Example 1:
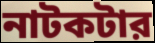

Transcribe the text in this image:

নাটকটার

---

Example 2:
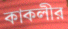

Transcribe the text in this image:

কাকলীর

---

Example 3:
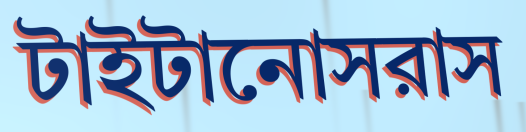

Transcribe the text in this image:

টাইটানোসরাস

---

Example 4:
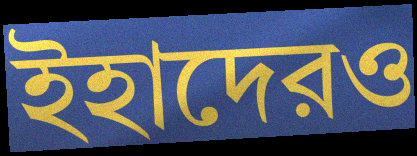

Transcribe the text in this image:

ইহাদেরও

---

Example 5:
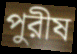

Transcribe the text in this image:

পুরীষ